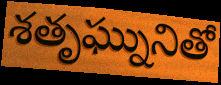
శతృఘ్నునితో